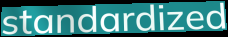
standardized